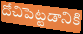
దోచిపెట్టడానికి